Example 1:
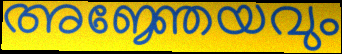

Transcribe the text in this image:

അജ്ഞേയവും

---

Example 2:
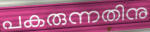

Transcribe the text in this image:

പകരുന്നതിനു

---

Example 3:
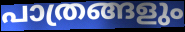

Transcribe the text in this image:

പാത്രങ്ങളും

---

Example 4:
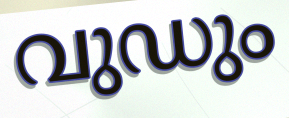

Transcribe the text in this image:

വുഡും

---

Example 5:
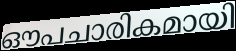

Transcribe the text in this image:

ഔപചാരികമായി